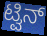
ಟ್ವಿನ್